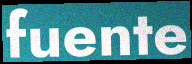
fuente